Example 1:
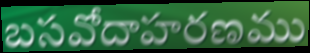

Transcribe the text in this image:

బసవోదాహరణము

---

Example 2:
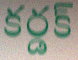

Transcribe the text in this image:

కర్డక్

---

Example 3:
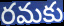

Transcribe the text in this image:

రమకు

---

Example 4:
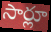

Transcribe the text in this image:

సార్లూ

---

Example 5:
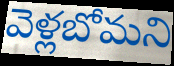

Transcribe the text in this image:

వెళ్లబోమని